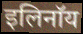
इलिनॉय